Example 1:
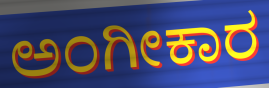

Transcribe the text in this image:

ಅಂಗೀಕಾರ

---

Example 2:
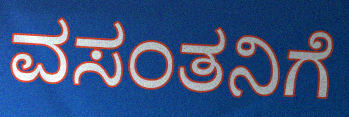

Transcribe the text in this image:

ವಸಂತನಿಗೆ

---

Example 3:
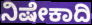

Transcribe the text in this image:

ನಿಷೇಕಾದಿ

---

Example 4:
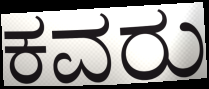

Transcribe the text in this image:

ಕವರು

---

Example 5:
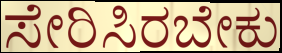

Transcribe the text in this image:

ಸೇರಿಸಿರಬೇಕು